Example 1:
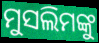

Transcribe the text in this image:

ମୁସଲିମଙ୍କୁ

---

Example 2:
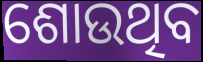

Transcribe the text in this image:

ଶୋଉଥିବ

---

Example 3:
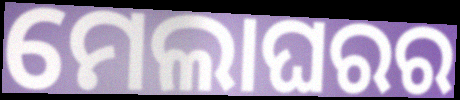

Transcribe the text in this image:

ମେଲାଘରର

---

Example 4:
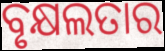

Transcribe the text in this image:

ବୃକ୍ଷଲତାର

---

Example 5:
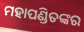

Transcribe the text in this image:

ମହାପଣ୍ଡିତଙ୍କର